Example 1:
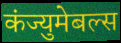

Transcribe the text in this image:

कंज्युमेबल्स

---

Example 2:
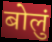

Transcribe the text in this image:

बोलुं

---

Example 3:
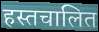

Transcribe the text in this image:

हस्तचालित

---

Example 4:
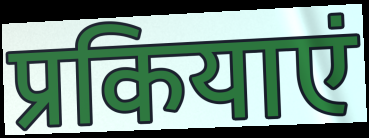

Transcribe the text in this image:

प्रकियाएं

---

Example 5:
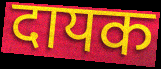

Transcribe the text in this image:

दायक